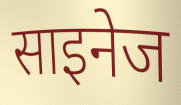
साइनेज